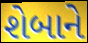
શેબાને